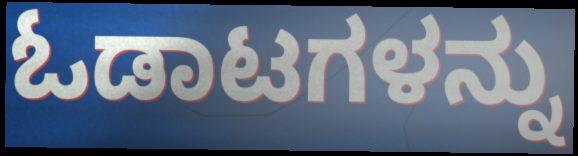
ಓಡಾಟಗಳನ್ನು